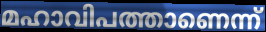
മഹാവിപത്താണെന്ന്